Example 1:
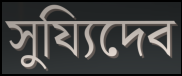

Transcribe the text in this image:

সুয্যিদেব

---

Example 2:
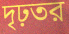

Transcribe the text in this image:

দৃঢ়তর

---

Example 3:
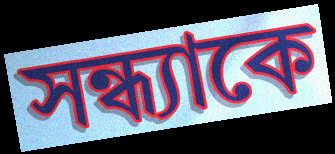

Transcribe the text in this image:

সন্ধ্যাকে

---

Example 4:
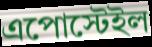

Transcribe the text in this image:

এপোস্টেইল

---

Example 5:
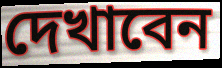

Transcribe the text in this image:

দেখাবেন